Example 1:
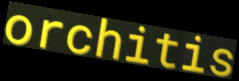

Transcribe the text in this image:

orchitis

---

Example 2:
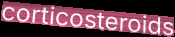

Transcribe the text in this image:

corticosteroids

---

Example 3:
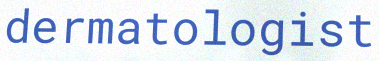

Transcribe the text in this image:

dermatologist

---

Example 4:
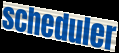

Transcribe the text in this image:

scheduler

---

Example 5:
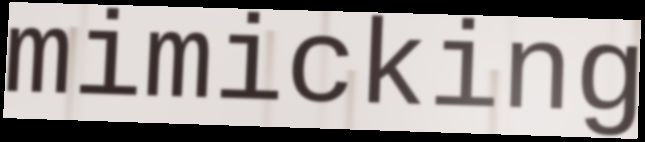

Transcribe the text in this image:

mimicking